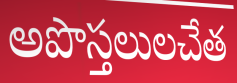
అపొస్తలులచేత